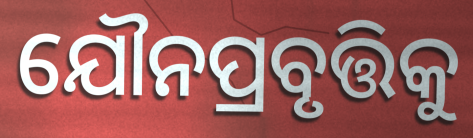
ଯୌନପ୍ରବୃତ୍ତିକୁ